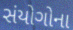
સંયોગોના